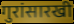
गुरांसारखी